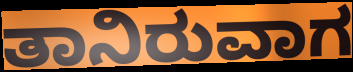
ತಾನಿರುವಾಗ